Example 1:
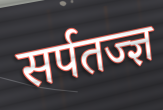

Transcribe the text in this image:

सर्पतज्ज्ञ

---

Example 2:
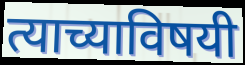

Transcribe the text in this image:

त्याच्याविषयी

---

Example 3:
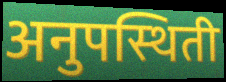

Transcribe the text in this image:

अनुपस्थिती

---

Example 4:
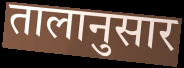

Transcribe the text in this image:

तालानुसार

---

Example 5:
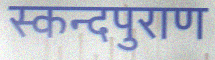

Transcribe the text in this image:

स्कन्दपुराण